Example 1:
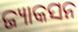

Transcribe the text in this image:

ଜ୍ୟାକସନ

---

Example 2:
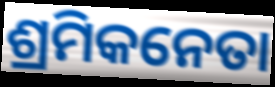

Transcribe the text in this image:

ଶ୍ରମିକନେତା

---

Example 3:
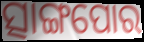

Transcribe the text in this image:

ତ୍ସାଙ୍ଗପୋର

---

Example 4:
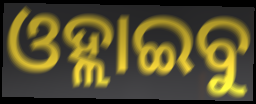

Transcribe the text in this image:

ଓହ୍ଲାଇବୁ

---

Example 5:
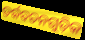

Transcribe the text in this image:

ତର୍କବଚନଗୁଡ଼ିକ